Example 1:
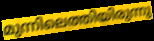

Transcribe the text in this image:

മുന്നിലെത്തിയിരുന്നു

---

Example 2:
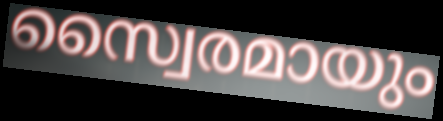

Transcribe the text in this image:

സ്വൈരമായും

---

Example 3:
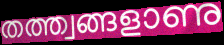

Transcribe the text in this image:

തത്ത്വങ്ങളാണു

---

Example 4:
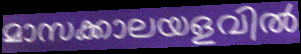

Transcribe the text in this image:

മാസക്കാലയളവിൽ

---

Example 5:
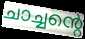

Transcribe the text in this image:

ചാച്ചന്റെ